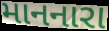
માનનારા